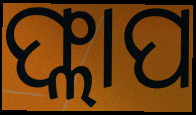
ଫ୍ଲାପ